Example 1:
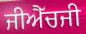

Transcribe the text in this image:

ਜੀਐੱਚਜੀ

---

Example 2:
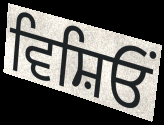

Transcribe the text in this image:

ਵਿਸ਼ਿਓਂ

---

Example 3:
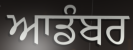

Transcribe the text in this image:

ਆਡੰਬਰ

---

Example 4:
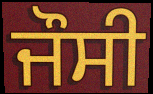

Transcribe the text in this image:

ਜੌਸੀ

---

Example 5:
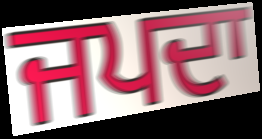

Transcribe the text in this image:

ਜਪਦਾ